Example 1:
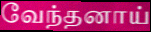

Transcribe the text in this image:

வேந்தனாய்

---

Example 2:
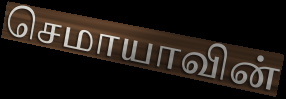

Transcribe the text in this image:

செமாயாவின்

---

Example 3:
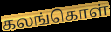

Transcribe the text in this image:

கலங்கொள்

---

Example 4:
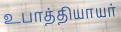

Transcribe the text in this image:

உபாத்தியாயர்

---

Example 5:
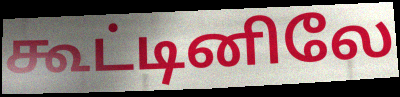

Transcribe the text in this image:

கூட்டினிலே